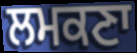
ਲਮਕਣਾ